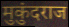
मुकुंदराज